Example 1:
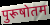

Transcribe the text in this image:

पुरूषोतम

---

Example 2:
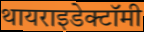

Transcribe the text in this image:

थायराइडेक्टॉमी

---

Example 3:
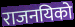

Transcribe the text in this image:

राजनयिको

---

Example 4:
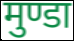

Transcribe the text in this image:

मुण्डा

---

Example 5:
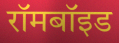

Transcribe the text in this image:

रॉमबॉइड